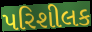
પરિશીલક